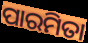
ପାରମିତା